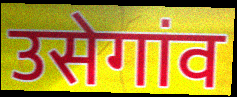
उसेगांव